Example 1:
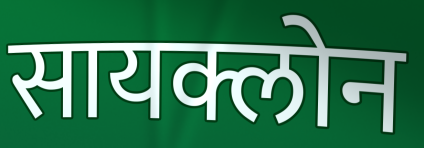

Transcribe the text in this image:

सायक्लोन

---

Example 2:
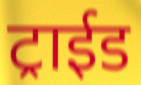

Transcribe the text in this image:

ट्राईड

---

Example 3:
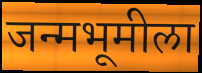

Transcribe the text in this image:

जन्मभूमीला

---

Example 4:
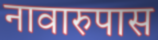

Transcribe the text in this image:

नावारुपास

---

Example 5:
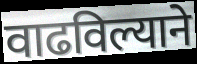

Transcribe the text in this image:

वाढविल्याने